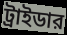
ট্রাইডার